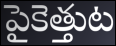
పైకెత్తుట